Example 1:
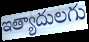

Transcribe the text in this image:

ఇత్యాదులగు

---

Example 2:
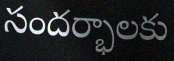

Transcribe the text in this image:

సందర్భాలకు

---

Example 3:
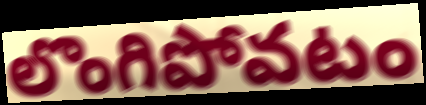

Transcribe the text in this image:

లొంగిపోవటం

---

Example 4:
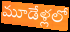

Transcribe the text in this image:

మూడేళ్లలో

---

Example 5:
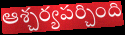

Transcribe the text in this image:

ఆశ్చర్యపర్చింది